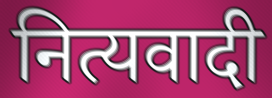
नित्यवादी